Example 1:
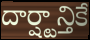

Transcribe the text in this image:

దార్ష్టాన్తికే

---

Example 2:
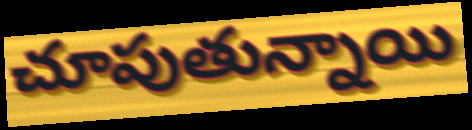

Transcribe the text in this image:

చూపుతున్నాయి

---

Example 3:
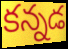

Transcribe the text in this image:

కన్నడ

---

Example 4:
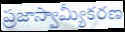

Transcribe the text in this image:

ప్రజాస్వామ్యీకరణ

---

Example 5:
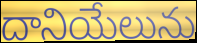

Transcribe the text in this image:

దానియేలును